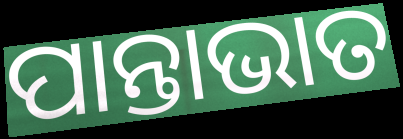
ପାନ୍ତାଭାତ